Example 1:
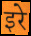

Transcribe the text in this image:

इरे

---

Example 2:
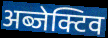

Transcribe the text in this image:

अब्जेक्टिव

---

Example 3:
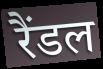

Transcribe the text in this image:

रैंडल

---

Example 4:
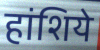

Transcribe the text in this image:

हांशिये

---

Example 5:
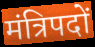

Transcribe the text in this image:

मंत्रिपदों